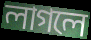
লাগলে